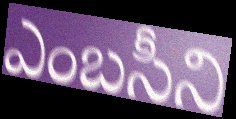
ఎంబసీని